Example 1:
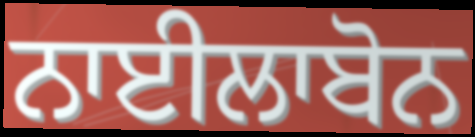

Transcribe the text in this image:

ਨਾਈਲਾਬੋਨ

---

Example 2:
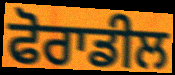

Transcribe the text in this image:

ਫੋਰਾਡੀਲ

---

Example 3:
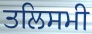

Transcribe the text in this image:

ਤਲਿਸਮੀ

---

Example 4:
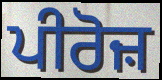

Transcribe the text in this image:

ਪੀਰੋਜ਼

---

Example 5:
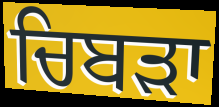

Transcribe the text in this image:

ਚਿਬੜਾ